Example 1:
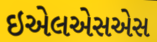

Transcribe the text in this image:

ઇએલએસએસ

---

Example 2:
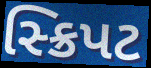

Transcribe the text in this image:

સ્ક્રિપટ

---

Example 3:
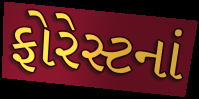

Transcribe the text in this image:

ફોરેસ્ટનાં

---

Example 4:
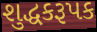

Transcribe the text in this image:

શુદ્ધકરૂપક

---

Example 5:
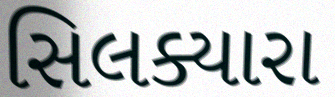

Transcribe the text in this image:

સિલક્યારા